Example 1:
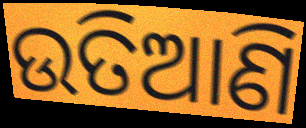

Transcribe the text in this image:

ଉତିଆଣି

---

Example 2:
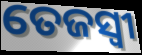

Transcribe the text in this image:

ତେଜସ୍ବୀ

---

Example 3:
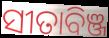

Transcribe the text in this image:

ସୀତାବିଞ୍ଜ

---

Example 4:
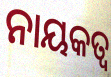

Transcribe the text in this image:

ନାୟକତ୍ୱ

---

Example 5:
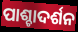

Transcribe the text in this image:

ପାଶ୍ଚାଦର୍ଶନ